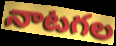
నాటగల